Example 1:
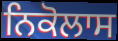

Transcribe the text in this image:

ਨਿਕੋਲਾਸ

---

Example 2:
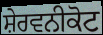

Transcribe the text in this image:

ਸ਼ੇਰਵਨੀਕੋਟ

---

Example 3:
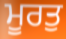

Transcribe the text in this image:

ਮੂਰਤੁ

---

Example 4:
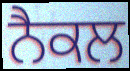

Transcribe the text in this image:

ਨੈਕਲ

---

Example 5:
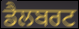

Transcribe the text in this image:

ਡੈਲਬਰਟ